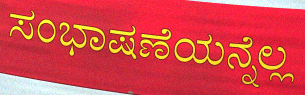
ಸಂಭಾಷಣೆಯನ್ನೆಲ್ಲ